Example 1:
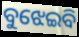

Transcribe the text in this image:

ବୁଝେଇବି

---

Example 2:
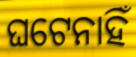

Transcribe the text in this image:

ଘଟେନାହିଁ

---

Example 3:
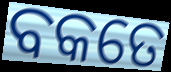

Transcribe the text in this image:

ବକତେ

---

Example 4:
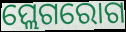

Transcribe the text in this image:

ପ୍ଲେଗରୋଗ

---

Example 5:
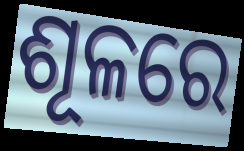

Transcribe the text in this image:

ଶୂଳରେ